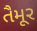
તૈમૂર